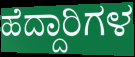
ಹೆದ್ದಾರಿಗಳ